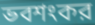
ভবশংকর